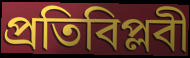
প্রতিবিপ্লবী